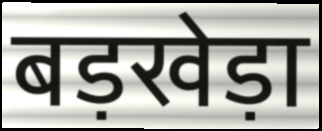
बड़खेड़ा